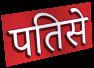
पतिसे